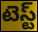
టెస్ట్